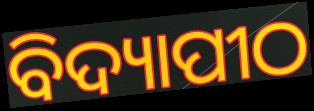
ବିଦ୍ୟାପୀଠ